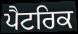
ਪੈਟਰਿਕ